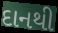
દાનથી